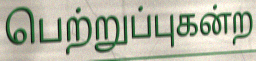
பெற்றுப்புகன்ற